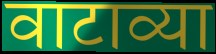
वाटाव्या